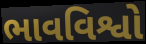
ભાવવિશ્વો